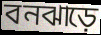
বনঝাড়ে